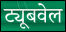
ट्यूबवेल